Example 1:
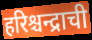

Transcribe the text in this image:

हरिश्चन्द्राची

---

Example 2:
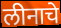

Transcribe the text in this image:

लीनाचे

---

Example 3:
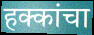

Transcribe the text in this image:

हक्कांचा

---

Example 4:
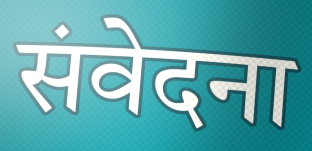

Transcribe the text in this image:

संवेदना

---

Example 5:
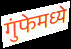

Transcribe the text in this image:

गुंफेमध्ये